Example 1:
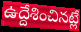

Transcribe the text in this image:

ఉద్దేశించినట్లే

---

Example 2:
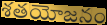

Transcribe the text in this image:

శతయోజనం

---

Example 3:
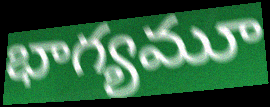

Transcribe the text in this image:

భాగ్యమూ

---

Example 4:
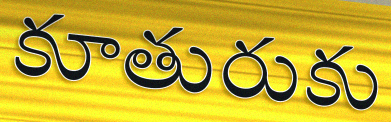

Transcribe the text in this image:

కూతురుకు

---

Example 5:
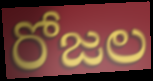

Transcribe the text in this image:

రోజల